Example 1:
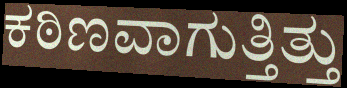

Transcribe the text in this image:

ಕಠಿಣವಾಗುತ್ತಿತ್ತು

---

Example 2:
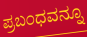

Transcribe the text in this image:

ಪ್ರಬಂಧವನ್ನೂ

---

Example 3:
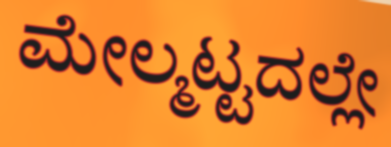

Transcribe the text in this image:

ಮೇಲ್ಮಟ್ಟದಲ್ಲೇ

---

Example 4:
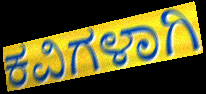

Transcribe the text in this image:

ಕವಿಗಳಾಗಿ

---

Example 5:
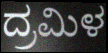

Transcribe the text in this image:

ದ್ರಮಿಳ